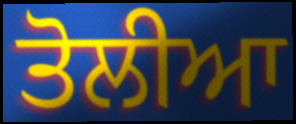
ਤੋਲੀਆ